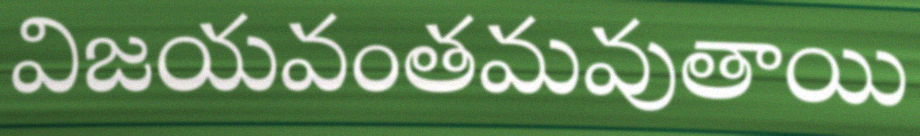
విజయవంతమవుతాయి